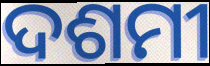
ଦଶମୀ